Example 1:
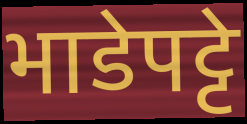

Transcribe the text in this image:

भाडेपट्टे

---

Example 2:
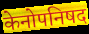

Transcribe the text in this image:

केनोपनिषद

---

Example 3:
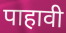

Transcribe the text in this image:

पाहावी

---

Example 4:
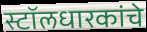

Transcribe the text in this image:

स्टॉलधारकांचे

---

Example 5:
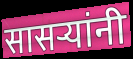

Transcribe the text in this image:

सासर्‍यांनी